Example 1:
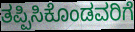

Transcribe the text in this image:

ತಪ್ಪಿಸಿಕೊಂಡವರಿಗೆ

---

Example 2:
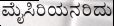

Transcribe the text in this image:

ಮೈಸಿರಿಯನರಿದು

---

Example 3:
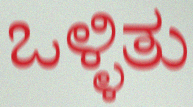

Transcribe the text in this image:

ಒಳ್ಳಿತು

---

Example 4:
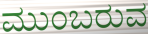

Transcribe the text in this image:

ಮುಂಬರುವ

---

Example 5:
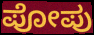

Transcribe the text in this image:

ಪೋಪು